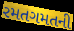
રમતગમતની